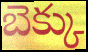
బెక్కు